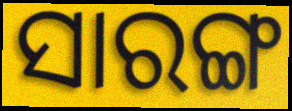
ସାରଙ୍ଗ